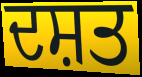
ਦਸ਼ਤ